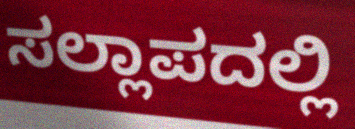
ಸಲ್ಲಾಪದಲ್ಲಿ